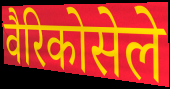
वैरिकोसेले